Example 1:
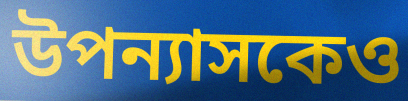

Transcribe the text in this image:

উপন্যাসকেও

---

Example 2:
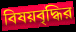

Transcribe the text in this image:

বিষয়বৃদ্ধির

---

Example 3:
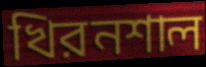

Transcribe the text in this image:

খিরনশাল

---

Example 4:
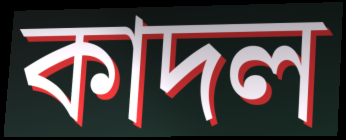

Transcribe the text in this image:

কাদল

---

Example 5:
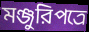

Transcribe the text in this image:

মঞ্জুরিপত্রে